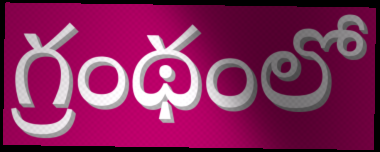
గ్రంథంలో